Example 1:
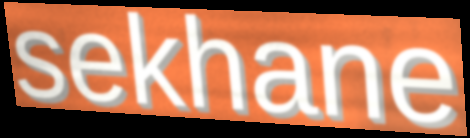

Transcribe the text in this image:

sekhane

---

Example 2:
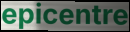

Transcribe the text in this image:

epicentre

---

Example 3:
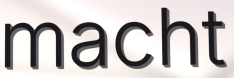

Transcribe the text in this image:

macht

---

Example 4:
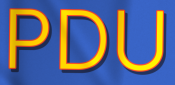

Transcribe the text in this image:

PDU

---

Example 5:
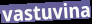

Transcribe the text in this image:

vastuvina